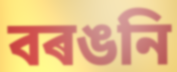
বৰঙনি